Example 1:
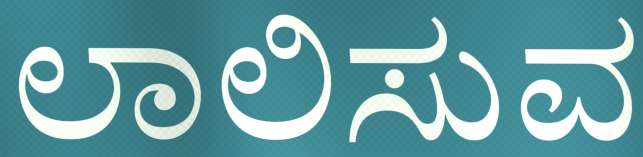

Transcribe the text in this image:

ಲಾಲಿಸುವ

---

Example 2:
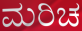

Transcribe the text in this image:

ಮರಿಚ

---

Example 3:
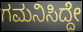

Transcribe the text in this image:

ಗಮನಿಸಿದ್ದೇ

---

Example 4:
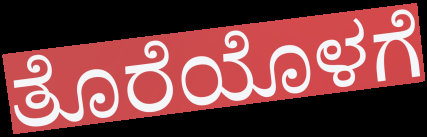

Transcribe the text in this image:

ತೊರೆಯೊಳಗೆ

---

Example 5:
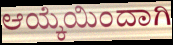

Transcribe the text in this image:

ಆಯ್ಕೆಯಿಂದಾಗಿ